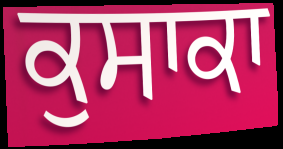
ਕੁਸਾਕਾ